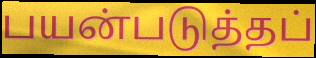
பயன்படுத்தப்